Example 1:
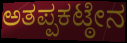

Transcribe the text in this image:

ಅತಪ್ಪಕಟ್ಠೇನ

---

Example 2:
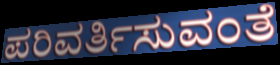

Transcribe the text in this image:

ಪರಿವರ್ತಿಸುವಂತೆ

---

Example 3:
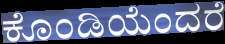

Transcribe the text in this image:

ಕೊಂಡಿಯೆಂದರೆ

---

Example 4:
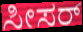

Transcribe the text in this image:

ಸೀಸರ್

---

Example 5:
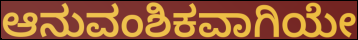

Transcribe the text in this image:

ಆನುವಂಶಿಕವಾಗಿಯೇ